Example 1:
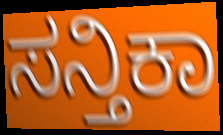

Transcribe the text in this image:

ಸನ್ತಿಕಾ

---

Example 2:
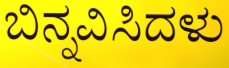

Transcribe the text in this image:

ಬಿನ್ನವಿಸಿದಳು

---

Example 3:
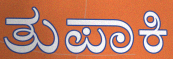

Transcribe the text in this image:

ತುಪಾಕಿ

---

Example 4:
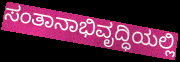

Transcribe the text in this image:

ಸಂತಾನಾಭಿವೃದ್ಧಿಯಲ್ಲಿ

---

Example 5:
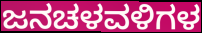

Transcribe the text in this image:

ಜನಚಳವಳಿಗಳ